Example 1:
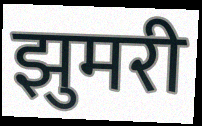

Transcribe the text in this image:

झुमरी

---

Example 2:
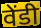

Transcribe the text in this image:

वेंडी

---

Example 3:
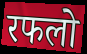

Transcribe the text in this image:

रफलो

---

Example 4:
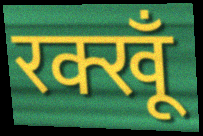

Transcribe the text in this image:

रक्खूँ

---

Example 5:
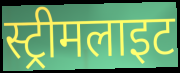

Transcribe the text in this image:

स्ट्रीमलाइट